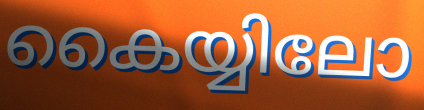
കൈയ്യിലോ